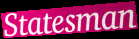
Statesman